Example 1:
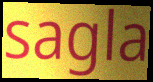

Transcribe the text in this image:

sagla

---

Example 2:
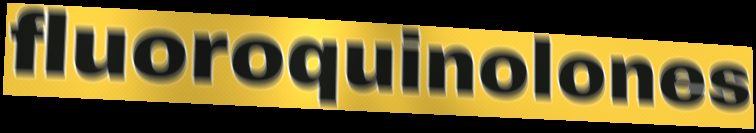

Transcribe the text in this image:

fluoroquinolones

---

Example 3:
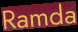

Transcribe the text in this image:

Ramda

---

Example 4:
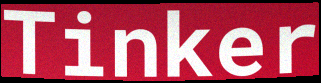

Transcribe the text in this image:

Tinker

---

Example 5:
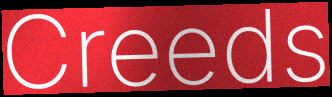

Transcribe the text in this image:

Creeds